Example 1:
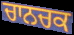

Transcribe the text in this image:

ਚਾਨਚਕ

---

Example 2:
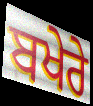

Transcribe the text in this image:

ਬਖੇਰੇ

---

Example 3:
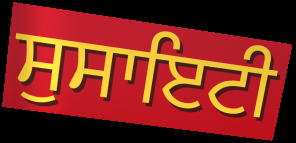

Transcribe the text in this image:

ਸੁਸਾਇਟੀ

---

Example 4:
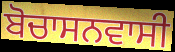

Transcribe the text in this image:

ਬੋਚਾਸਨਵਾਸੀ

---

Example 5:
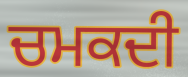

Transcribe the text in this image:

ਚਮਕਦੀ